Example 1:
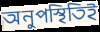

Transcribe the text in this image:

অনুপস্থিতিই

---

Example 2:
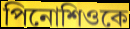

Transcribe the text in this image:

পিনোশিওকে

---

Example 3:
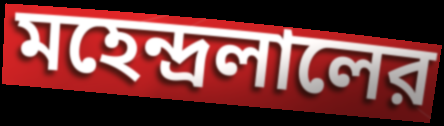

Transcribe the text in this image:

মহেন্দ্রলালের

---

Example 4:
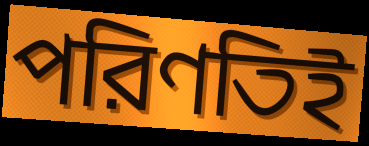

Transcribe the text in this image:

পরিণতিই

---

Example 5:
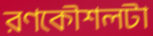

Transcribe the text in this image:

রণকৌশলটা